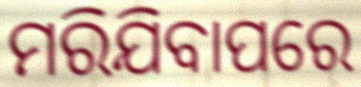
ମରିଯିବାପରେ